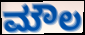
ಮೌಲ